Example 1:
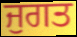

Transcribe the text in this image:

ਜੁਗਤ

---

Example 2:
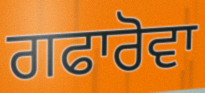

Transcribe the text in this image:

ਗਫਾਰੋਵਾ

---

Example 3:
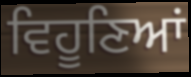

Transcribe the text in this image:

ਵਿਹੂਣਿਆਂ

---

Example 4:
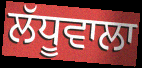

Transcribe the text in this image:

ਲੱਧੂਵਾਲਾ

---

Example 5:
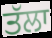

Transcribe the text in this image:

ਤੱਲਾ